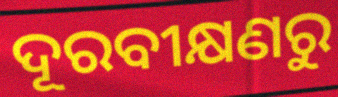
ଦୂରବୀକ୍ଷଣରୁ